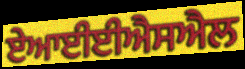
ਏਆਈਈਐਸਐਲ